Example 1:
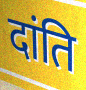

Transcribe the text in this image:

दांति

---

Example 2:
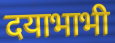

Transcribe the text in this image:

दयाभाभी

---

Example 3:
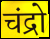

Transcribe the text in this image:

चंद्रो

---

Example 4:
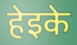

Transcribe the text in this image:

हेइके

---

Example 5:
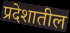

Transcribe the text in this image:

प्रदेशातील